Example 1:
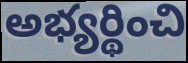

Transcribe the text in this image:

అభ్యర్థించి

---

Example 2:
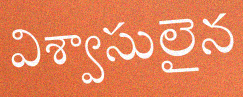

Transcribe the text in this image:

విశ్వాసులైన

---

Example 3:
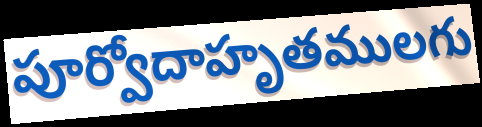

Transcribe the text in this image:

పూర్వోదాహృతములగు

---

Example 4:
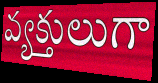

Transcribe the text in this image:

వ్యక్తులుగా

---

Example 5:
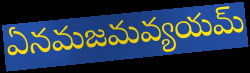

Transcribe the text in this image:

ఏనమజమవ్యయమ్